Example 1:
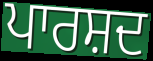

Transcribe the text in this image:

ਪਾਰਸ਼ਦ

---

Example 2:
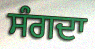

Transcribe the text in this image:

ਸੰਗਦਾ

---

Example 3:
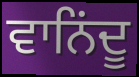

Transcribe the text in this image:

ਵਾਨਿਂਦੂ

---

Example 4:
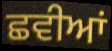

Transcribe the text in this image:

ਛਵੀਆਂ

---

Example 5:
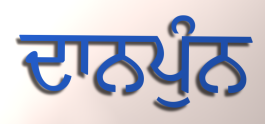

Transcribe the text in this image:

ਦਾਨਪੁੰਨ